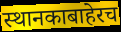
स्थानकाबाहेरच